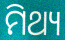
ମିଥ୍ୟ